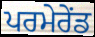
ਪਰਮੇਰੇਂਡ